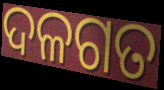
ଦଳଗତ